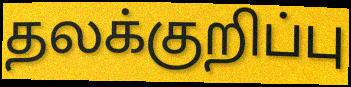
தலக்குறிப்பு